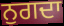
ਨੁਗਦਾ